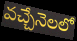
వచ్చేనెలలో